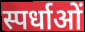
स्पर्धाओं